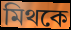
মিথকে